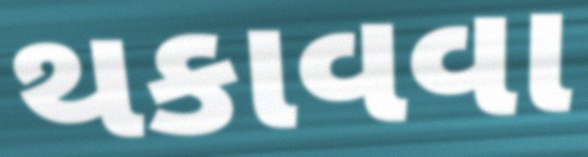
થકાવવા